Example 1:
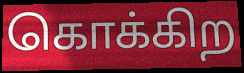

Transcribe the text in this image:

கொக்கிற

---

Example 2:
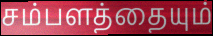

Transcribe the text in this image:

சம்பளத்தையும்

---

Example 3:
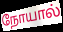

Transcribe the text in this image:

நோயால்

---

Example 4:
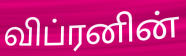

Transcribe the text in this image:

விப்ரனின்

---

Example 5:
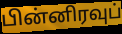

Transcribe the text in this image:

பின்னிரவுப்